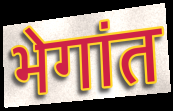
भेगांत